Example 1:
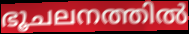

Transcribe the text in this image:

ഭൂചലനത്തിൽ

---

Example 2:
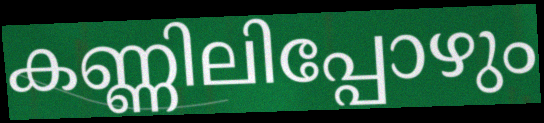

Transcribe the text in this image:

കണ്ണിലിപ്പോഴും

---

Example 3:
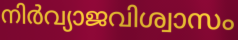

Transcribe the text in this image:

നിർവ്യാജവിശ്വാസം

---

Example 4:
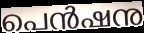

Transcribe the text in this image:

പെൻഷനു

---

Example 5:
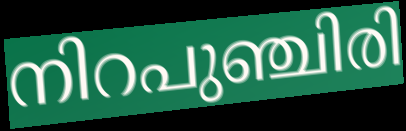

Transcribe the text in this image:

നിറപുഞ്ചിരി